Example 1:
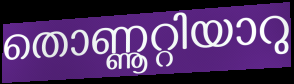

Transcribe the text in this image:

തൊണ്ണൂറ്റിയാറു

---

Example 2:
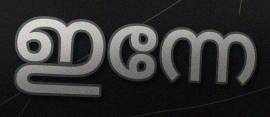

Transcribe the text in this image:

ഇന്നേ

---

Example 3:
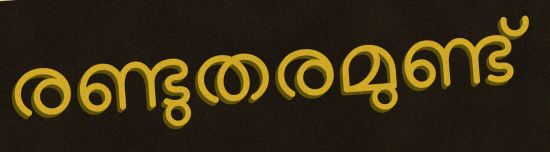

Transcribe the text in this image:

രണ്ടുതരമുണ്ട്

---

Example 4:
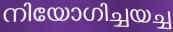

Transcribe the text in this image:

നിയോഗിച്ചയച്ച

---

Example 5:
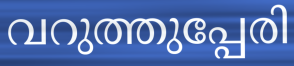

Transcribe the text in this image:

വറുത്തുപ്പേരി